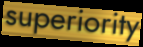
superiority